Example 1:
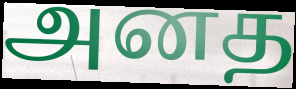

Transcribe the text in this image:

அனத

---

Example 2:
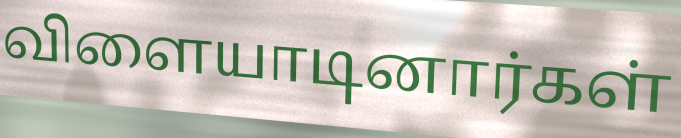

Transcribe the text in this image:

விளையாடினார்கள்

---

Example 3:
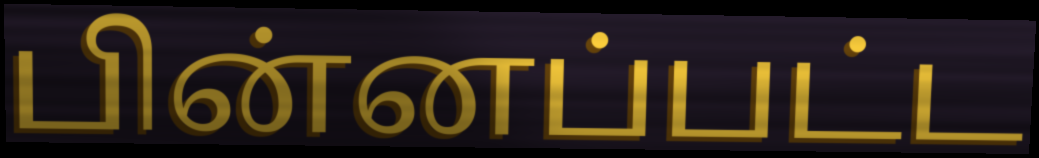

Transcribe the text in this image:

பின்னப்பட்ட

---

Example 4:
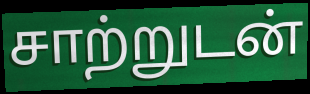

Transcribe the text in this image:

சாற்றுடன்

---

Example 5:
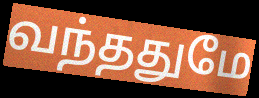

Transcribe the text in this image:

வந்ததுமே